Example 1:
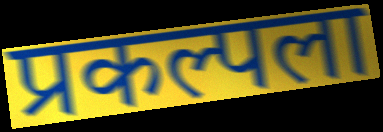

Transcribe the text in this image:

प्रकल्पला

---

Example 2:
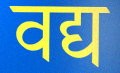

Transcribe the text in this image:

वद्य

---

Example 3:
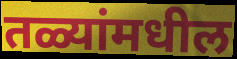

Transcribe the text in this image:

तळ्यांमधील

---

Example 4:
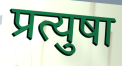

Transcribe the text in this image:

प्रत्युषा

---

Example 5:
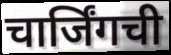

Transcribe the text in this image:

चार्जिंगची